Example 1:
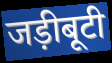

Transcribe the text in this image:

जड़ीबूटी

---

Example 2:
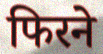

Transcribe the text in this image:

फिरने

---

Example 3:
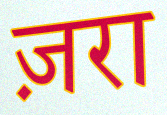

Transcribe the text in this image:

ज़रा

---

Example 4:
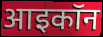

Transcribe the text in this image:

आइकॉन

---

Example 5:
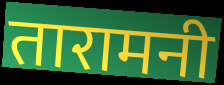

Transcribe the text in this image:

तारामनी